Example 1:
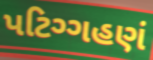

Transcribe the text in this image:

પટિગ્ગહણં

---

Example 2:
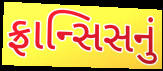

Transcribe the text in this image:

ફ્રાન્સિસનું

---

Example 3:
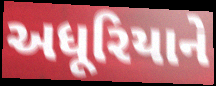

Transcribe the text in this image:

અધૂરિયાને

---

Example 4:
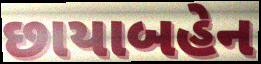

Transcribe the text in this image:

છાયાબહેન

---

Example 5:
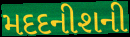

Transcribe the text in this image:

મદદનીશની